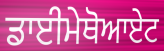
ਡਾਈਮੇਥੋਆਏਟ